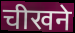
चीखने